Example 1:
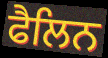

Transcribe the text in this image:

ਫੈਲਿਨ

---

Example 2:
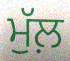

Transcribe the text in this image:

ਮੁੱਲ਼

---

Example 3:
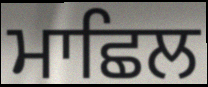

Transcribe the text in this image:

ਮਾਛਿਲ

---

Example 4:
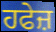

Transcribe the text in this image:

ਹਫੇਜ਼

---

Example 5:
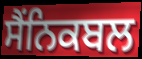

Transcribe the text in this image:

ਸੈੰਨਿਕਬਲ